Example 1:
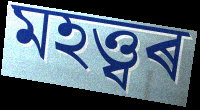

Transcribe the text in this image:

মহত্ত্বৰ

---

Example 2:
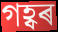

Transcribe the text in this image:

গহ্বৰ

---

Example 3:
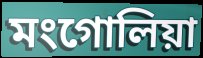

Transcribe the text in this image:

মংগোলিয়া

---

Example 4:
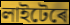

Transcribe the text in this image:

লাইটেৰে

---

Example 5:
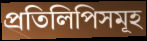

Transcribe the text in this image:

প্ৰতিলিপিসমূহ